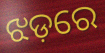
ଝଡ଼ରେ